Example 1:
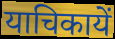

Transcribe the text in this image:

याचिकायें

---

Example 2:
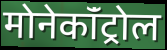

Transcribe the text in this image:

मोनेकॉंट्रोल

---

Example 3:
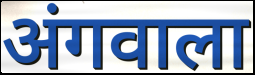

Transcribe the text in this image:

अंगवाला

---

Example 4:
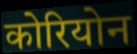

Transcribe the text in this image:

कोरियोन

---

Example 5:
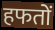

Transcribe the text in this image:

हफतों